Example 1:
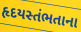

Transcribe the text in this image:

હૃદયસ્તંભતાના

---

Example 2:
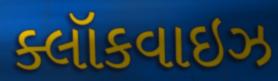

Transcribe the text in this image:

ક્લૉકવાઇઝ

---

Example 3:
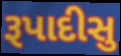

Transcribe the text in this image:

રૂપાદીસુ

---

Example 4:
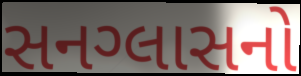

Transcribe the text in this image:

સનગ્લાસનો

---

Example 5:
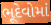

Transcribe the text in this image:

ભૂદેવોમાં